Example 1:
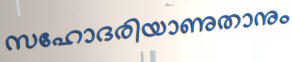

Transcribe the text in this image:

സഹോദരിയാണുതാനും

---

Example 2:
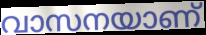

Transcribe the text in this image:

വാസനയാണ്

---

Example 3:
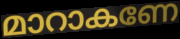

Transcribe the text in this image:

മാറാകണേ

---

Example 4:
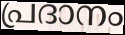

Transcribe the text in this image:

പ്രദാനം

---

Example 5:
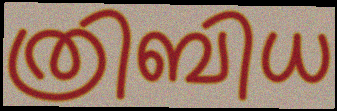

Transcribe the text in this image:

ത്രിബിധ